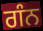
ਗੰਨ